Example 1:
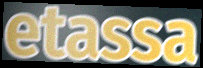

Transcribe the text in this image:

etassa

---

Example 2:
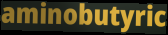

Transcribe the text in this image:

aminobutyric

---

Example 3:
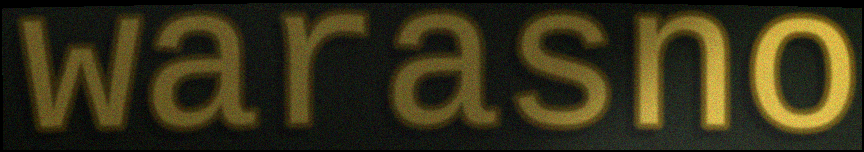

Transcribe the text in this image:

warasno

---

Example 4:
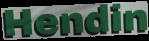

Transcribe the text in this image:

Hendin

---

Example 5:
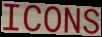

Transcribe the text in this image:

ICONS